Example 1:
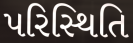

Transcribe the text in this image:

પરિસ્‍થિતિ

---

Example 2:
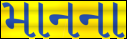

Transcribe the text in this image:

માનના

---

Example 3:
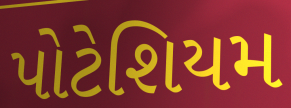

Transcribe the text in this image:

પોટેશિયમ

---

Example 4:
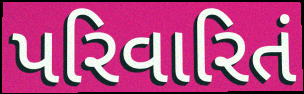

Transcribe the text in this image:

પરિવારિતં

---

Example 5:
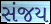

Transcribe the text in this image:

સંજય